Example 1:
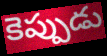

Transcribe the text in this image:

కెప్పుడు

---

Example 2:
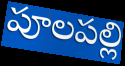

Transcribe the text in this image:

పూలపల్లి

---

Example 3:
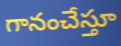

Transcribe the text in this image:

గానంచేస్తూ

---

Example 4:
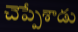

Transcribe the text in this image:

చెప్పేశాడు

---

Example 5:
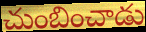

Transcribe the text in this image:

చుంబించాడు